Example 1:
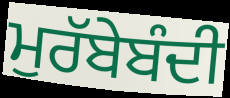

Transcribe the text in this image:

ਮੁਰੱਬੇਬੰਦੀ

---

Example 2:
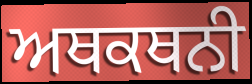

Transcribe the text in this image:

ਅਥਕਥਨੀ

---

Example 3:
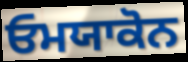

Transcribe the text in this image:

ਓਮਯਾਕੋਨ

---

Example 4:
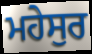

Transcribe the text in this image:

ਮਹੇਸੁਰ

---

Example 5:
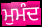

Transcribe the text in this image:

ਮੁਮੰਦ